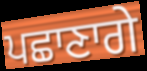
ਪਛਾਣਾਗੇ